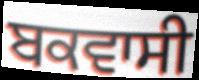
ਬਕਵਾਸੀ